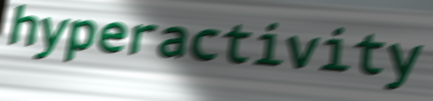
hyperactivity